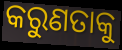
କରୁଣତାକୁ